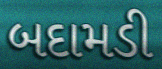
બદામડી